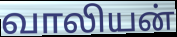
வாலியன்